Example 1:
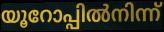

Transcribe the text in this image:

യൂറോപ്പിൽനിന്ന്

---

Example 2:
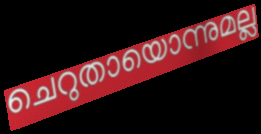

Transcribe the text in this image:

ചെറുതായൊന്നുമല്ല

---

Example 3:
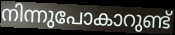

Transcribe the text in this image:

നിന്നുപോകാറുണ്ട്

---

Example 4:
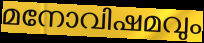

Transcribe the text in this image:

മനോവിഷമവും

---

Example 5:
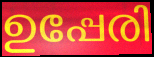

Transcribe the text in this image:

ഉപ്പേരി